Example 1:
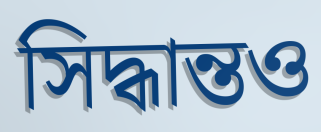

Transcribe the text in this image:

সিদ্ধান্তও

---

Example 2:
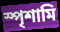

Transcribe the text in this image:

স্পৃশামি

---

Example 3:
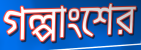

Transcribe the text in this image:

গল্পাংশের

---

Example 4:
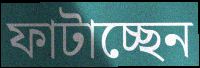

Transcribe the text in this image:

ফাটাচ্ছেন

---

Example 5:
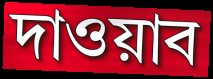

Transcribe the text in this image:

দাওয়াব